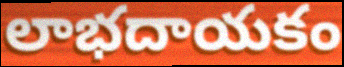
లాభదాయకం